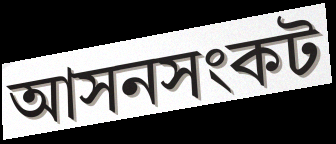
আসনসংকট